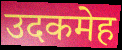
उदकमेह